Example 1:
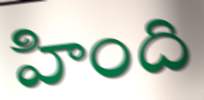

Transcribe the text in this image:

హింది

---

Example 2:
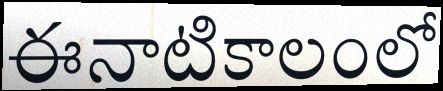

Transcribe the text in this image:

ఈనాటికాలంలో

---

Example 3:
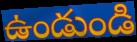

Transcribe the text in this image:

ఉండుండి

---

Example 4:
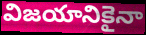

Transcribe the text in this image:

విజయానికైనా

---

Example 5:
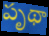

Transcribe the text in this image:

పృథా